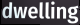
dwelling